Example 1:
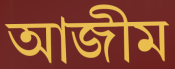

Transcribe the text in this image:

আজীম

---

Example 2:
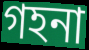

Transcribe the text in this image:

গহনা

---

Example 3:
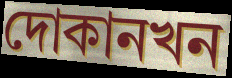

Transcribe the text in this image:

দোকানখন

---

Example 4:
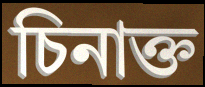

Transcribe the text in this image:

চিনাক্ত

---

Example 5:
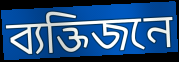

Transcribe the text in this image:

ব্যক্তিজনে